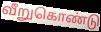
வீறுகொண்டு